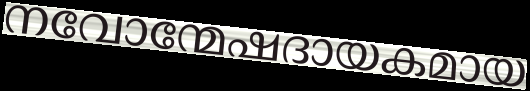
നവോന്മേഷദായകമായ